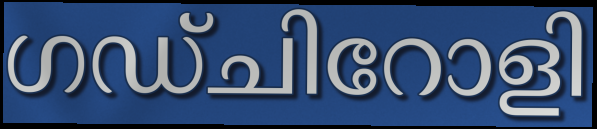
ഗഡ്ചിറോളി